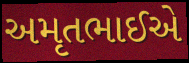
અમૃતભાઈએ